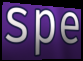
spe